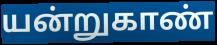
யன்றுகாண்